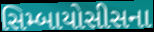
સિમ્બાયોસીસના